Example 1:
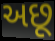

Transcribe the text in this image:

અછૂ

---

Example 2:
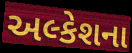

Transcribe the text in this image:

અલ્કેશના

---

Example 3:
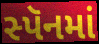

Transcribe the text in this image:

સ્પૅનમાં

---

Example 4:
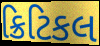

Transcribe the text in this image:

ક્રિટિકલ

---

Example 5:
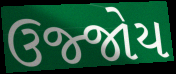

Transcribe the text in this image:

ઉજ્જોય